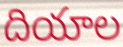
దియాల